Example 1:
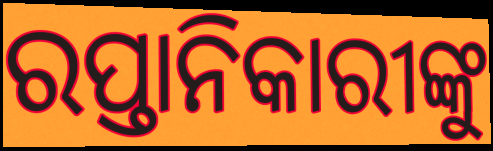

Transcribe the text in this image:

ରପ୍ତାନିକାରୀଙ୍କୁ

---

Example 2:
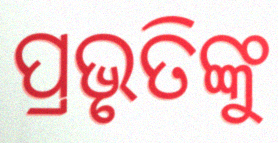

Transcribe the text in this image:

ପ୍ରଭୃତିଙ୍କୁ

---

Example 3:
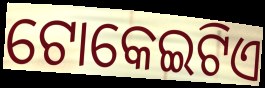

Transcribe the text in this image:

ଟୋକେଇଟିଏ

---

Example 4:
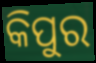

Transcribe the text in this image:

କିପୁର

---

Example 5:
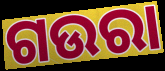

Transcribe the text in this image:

ଗଉରା